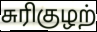
சுரிகுழற்